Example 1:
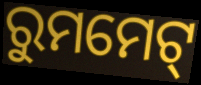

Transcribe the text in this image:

ରୁମମେଟ୍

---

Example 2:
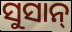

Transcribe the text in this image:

ସୁସାନ୍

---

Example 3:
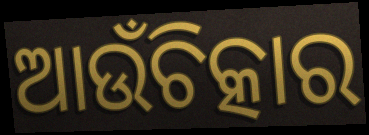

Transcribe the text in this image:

ଆଉଁଚିତ୍କାର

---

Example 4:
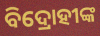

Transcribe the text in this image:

ବିଦ୍ରୋହୀଙ୍କ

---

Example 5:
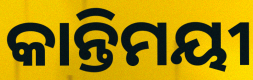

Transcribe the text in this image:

କାନ୍ତିମୟୀ